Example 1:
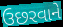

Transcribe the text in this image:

ઉછરવાને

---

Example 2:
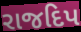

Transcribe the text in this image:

રાજદિપ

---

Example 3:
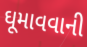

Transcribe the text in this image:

ઘૂમાવવાની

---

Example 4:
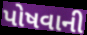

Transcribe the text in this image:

પોષવાની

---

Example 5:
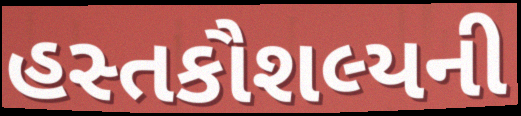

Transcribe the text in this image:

હસ્તકૌશલ્યની